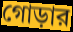
গোড়ার